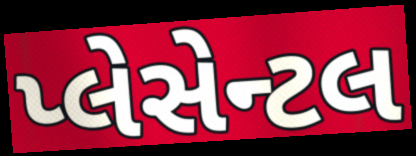
પ્લેસેન્ટલ